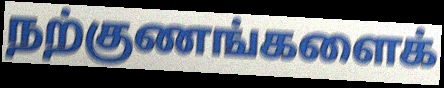
நற்குணங்களைக்